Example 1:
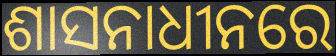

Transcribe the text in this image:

ଶାସନାଧୀନରେ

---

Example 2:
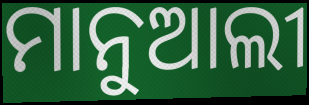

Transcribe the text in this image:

ମାନୁଆଲୀ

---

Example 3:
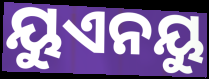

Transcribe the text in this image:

ୟୁଏନୟୁ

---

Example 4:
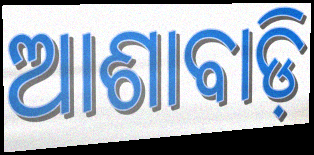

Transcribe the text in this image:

ଆଶାବାଡ଼ି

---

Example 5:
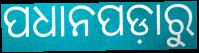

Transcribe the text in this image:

ପଧାନପଡ଼ାରୁ